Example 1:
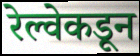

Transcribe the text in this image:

रेल्वेकडून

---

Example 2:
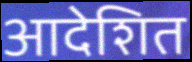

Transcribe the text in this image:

आदेशित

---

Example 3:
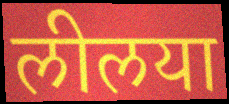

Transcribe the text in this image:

लीलया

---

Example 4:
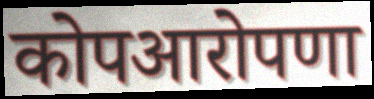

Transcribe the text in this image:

कोपआरोपणा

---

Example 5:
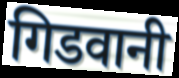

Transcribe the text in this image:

गिडवानी